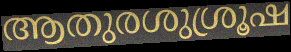
ആതുരശുശ്രൂഷ